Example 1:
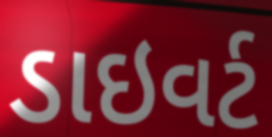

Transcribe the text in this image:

ડાઇવર્ટ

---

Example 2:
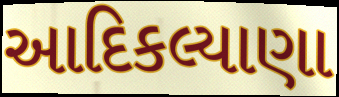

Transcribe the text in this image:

આદિકલ્યાણા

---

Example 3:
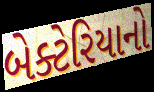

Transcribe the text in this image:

બેક્ટેરિયાનો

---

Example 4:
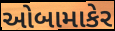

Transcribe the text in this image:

ઓબામાકેર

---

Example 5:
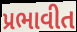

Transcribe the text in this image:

પ્રભાવીત